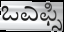
ಒಎಫ್ಸಿ